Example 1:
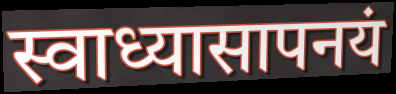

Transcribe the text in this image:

स्वाध्यासापनयं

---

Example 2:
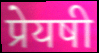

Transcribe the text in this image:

प्रेयषी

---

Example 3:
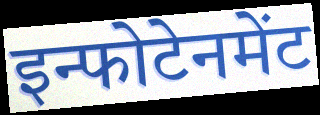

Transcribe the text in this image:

इन्फोटेनमेंट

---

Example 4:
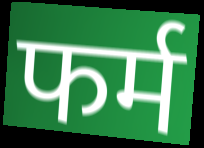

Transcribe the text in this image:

फर्म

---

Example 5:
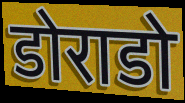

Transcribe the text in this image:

डोराडो